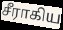
சீராகிய